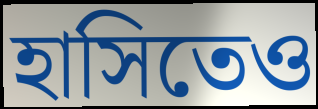
হাসিতেও